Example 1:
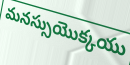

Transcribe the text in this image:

మనస్సుయొక్కయు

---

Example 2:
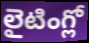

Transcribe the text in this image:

లైటింగ్లో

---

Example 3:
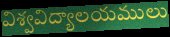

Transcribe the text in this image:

విశ్వవిద్యాలయములు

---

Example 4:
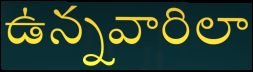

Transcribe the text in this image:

ఉన్నవారిలా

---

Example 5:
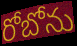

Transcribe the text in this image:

రోబోను